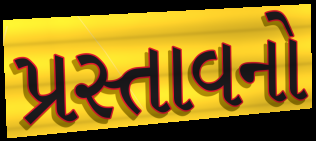
પ્રસ્તાવનો